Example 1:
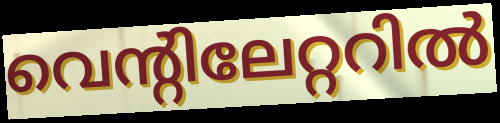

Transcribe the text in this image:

വെന്റിലേറ്ററിൽ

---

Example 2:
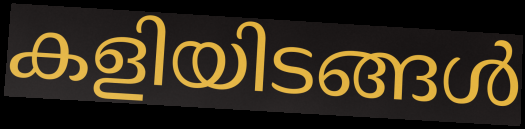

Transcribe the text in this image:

കളിയിടങ്ങൾ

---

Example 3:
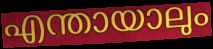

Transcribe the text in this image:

എന്തായാലും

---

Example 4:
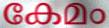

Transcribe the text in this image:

കേമം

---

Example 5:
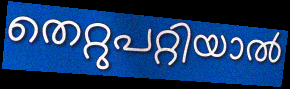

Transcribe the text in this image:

തെറ്റുപറ്റിയാൽ